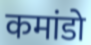
कमांडो